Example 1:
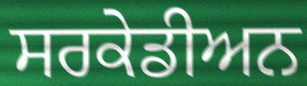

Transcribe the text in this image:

ਸਰਕੇਡੀਅਨ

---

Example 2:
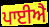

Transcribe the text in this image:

ਪਾਈਐ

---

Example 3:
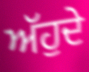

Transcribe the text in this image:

ਅੱਹੁਦੇ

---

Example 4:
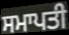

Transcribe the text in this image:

ਸਮਾਪਤੀ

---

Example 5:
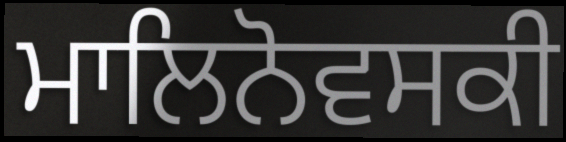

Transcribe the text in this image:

ਮਾਲਿਨੋਵਸਕੀ